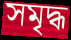
সমৃদ্ধ